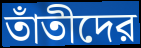
তাঁতীদের